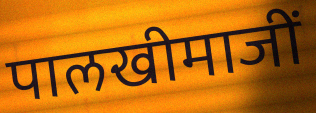
पालखीमाजीं